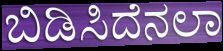
ಬಿಡಿಸಿದೆನಲಾ